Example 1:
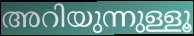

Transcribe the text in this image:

അറിയുന്നുള്ളൂ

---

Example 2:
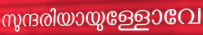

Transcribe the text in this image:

സുന്ദരിയായുള്ളോവേ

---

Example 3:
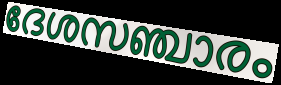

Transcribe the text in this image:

ദേശസഞ്ചാരം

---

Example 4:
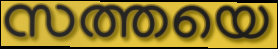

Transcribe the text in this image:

സത്തയെ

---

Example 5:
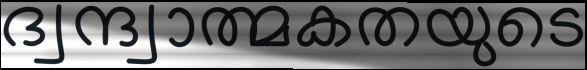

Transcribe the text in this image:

ദ്വന്ദ്വാത്മകതയുടെ